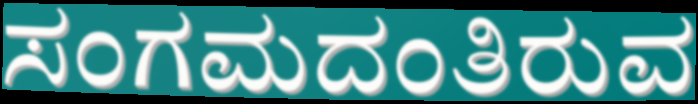
ಸಂಗಮದಂತಿರುವ